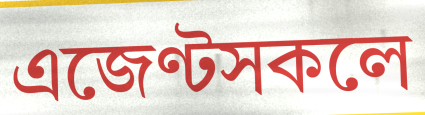
এজেণ্টসকলে